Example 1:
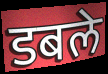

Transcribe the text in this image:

डबले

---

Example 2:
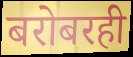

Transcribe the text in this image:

बरोबरही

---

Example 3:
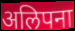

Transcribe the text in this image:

अलिपना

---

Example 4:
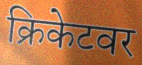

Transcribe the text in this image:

क्रिकेटवर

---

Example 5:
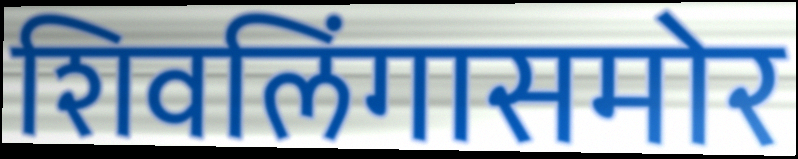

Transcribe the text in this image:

शिवलिंगासमोर